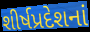
શીર્ષપ્રદેશનાં